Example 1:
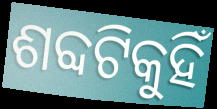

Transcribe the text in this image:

ଶବ୍ଦଟିକୁହିଁ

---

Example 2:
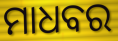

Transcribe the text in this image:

ମାଧବର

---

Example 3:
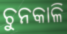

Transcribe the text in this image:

ଚୁନକାଳି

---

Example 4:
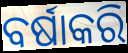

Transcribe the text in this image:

ବର୍ଷାକରି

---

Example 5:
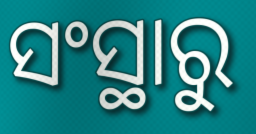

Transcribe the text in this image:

ସଂସ୍ଥାରୁ